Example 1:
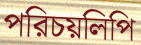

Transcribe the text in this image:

পরিচয়লিপি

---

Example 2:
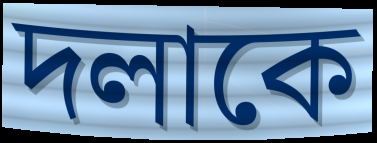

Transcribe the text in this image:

দলাকে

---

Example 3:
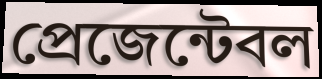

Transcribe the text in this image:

প্রেজেন্টেবল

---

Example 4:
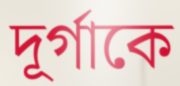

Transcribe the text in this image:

দূর্গাকে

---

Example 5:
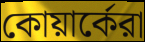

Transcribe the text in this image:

কোয়ার্কেরা